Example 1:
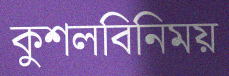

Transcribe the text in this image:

কুশলবিনিময়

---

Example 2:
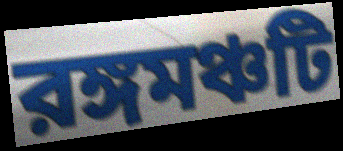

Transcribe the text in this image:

রঙ্গমঞ্চটি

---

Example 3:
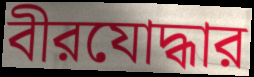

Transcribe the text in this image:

বীরযোদ্ধার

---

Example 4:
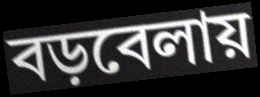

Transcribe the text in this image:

বড়বেলায়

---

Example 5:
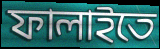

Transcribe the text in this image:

ফালাইতে